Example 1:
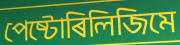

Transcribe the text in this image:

পেষ্টোৰিলিজিমে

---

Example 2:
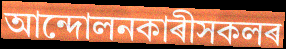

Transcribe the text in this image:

আন্দোলনকাৰীসকলৰ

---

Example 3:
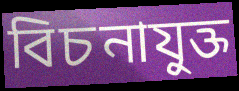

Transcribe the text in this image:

বিচনাযুক্ত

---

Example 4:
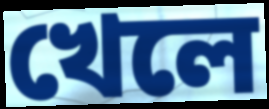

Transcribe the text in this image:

খেলে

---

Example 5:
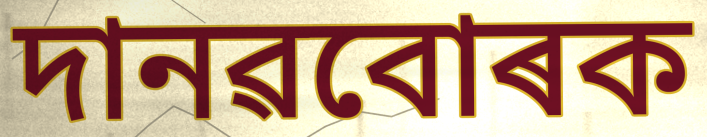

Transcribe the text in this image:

দানৱবোৰক